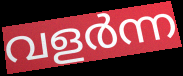
വളർന്ന